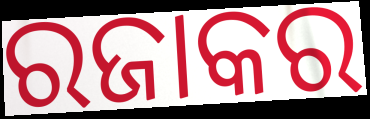
ରଜାକର